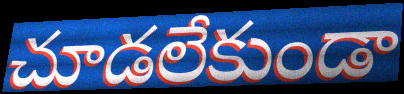
చూడలేకుండా